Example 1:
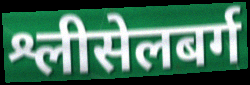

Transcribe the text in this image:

श्लीसेलबर्ग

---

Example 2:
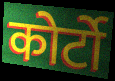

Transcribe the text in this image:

कोर्टो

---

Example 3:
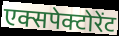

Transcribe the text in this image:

एक्सपेक्टोरेंट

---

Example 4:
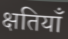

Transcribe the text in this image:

क्षतियाँ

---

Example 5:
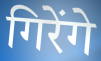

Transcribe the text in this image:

गिरेंगे